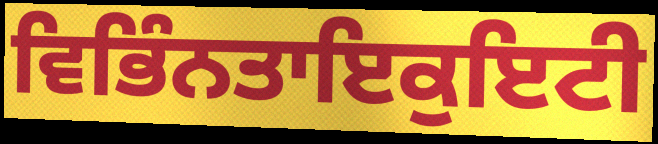
ਵਿਭਿੰਨਤਾਇਕੁਇਟੀ